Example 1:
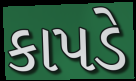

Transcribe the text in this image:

કાપડે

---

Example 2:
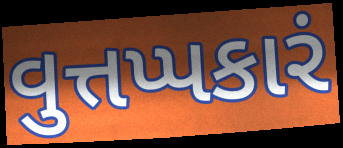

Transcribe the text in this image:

વુત્તપ્પકારં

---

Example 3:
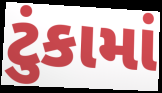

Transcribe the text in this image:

ટુંકામાં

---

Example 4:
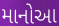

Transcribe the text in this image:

માનોઆ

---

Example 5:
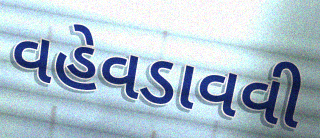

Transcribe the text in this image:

વહેવડાવવી